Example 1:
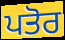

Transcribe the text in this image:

ਪਤੋਰ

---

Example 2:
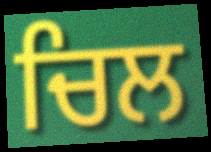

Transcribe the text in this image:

ਚਿਲ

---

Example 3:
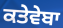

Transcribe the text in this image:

ਕਤੇਵੇਬਾ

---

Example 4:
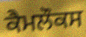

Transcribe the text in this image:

ਕੈਮਲੌਕਸ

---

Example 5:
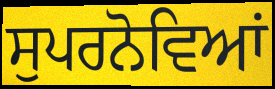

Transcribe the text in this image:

ਸੁਪਰਨੋਵਿਆਂ